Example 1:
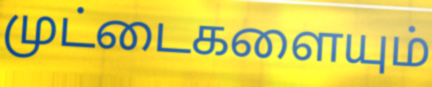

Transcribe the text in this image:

முட்டைகளையும்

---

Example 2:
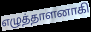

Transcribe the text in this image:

எழுத்தாளனாகி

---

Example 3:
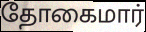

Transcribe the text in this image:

தோகைமார்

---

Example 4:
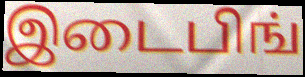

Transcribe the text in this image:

இடைபிங்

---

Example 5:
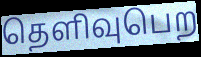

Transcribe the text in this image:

தெளிவுபெற